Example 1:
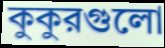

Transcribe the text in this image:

কুকুরগুলো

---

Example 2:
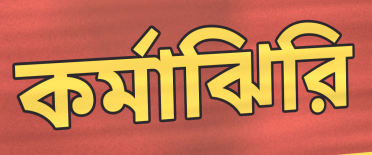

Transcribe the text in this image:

কর্মাঝিরি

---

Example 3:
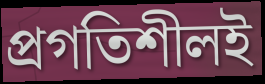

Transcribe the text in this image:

প্রগতিশীলই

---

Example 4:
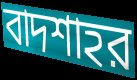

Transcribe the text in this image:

বাদশাহর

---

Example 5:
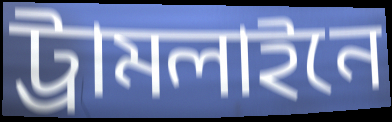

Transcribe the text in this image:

ট্রামলাইনে